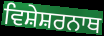
ਵਿਸ਼ੇਸ਼ਰਨਾਥ